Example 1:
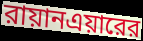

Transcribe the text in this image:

রায়ানএয়ারের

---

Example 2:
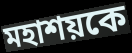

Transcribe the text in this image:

মহাশয়কে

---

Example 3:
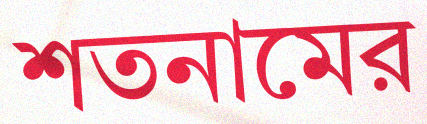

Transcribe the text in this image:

শতনামের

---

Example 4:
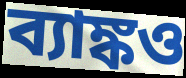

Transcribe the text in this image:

ব্যাঙ্কও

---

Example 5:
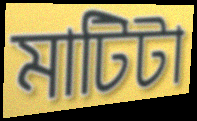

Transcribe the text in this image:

মাটিটা